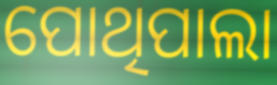
ପୋଥିପାଲା